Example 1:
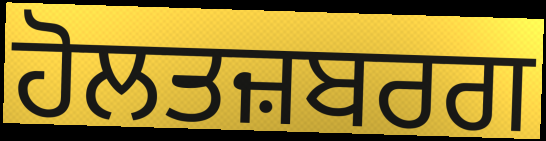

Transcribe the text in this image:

ਹੋਲਤਜ਼ਬਰਗ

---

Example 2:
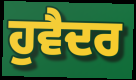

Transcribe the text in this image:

ਹੁਵੈਦਰ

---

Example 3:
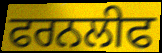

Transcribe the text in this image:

ਫਰਨਲੀਫ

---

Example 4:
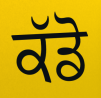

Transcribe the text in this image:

ਕੱਡੋ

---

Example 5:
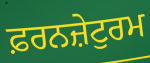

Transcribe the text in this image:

ਫ਼ਰਨਜ਼ੇਟੁਰਮ